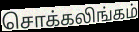
சொக்கலிங்கம்